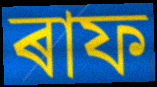
ৰাফ